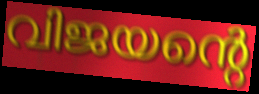
വിജയന്റെ